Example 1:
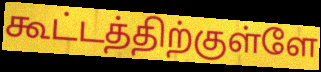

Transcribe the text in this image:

கூட்டத்திற்குள்ளே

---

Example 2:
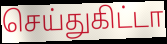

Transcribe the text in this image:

செய்துகிட்டா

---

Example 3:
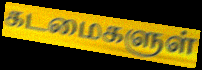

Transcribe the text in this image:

கடமைகளுள்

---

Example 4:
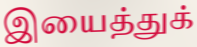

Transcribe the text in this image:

இயைத்துக்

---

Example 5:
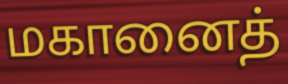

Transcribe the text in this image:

மகானைத்